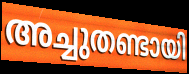
അച്ചുതണ്ടായി